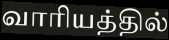
வாரியத்தில்